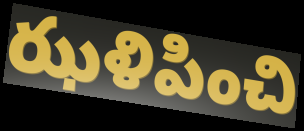
ఝళిపించి